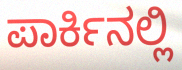
ಪಾರ್ಕಿನಲ್ಲಿ